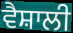
ਵੈਸ਼ਾਲੀ